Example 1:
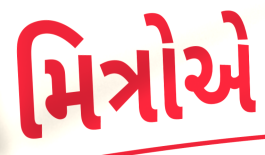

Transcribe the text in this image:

મિત્રોએ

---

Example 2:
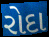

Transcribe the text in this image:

રોદા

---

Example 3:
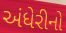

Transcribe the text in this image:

અંધેરીનો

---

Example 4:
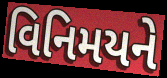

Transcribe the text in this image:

વિનિમયને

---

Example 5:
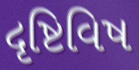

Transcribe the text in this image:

દૃષ્ટિવિષ